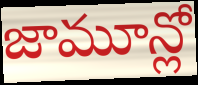
జామూన్లో